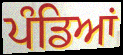
ਪੰਡਿਆਂ